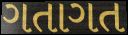
ગતાગત